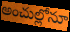
అంచుల్లోనూ